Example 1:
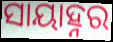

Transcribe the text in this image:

ସାୟାହ୍ନର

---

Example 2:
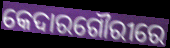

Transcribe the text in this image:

କେଦାରଗୌରୀରେ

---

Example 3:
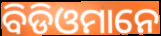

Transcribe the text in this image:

ବିଡିଓମାନେ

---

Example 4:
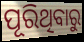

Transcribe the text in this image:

ପୂରିଥିବାରୁ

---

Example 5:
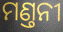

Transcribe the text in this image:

ମଣ୍ତନୀ